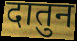
दातुन